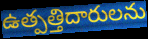
ఉత్పత్తిదారులను